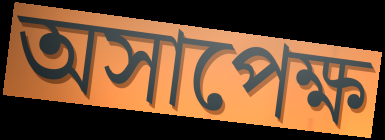
অসাপেক্ষ